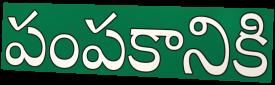
పంపకానికి